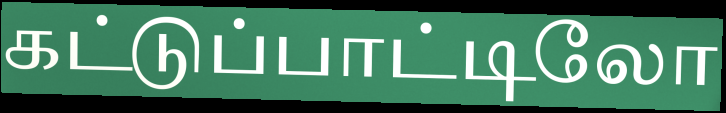
கட்டுப்பாட்டிலோ